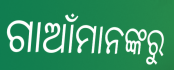
ଗାଆଁମାନଙ୍କରୁ